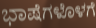
ಭಾಷೆಗಳೊಳಗೆ